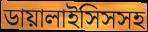
ডায়ালাইসিসসহ